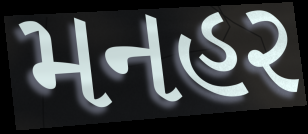
મનહર